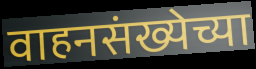
वाहनसंख्येच्या